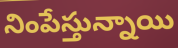
నింపేస్తున్నాయి